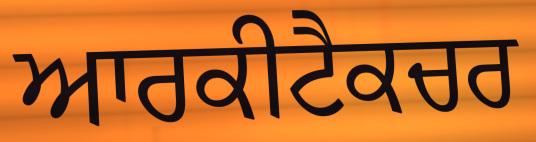
ਆਰਕੀਟੈਕਚਰ